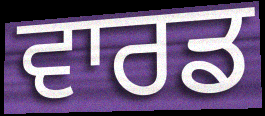
ਵਾਰਡ